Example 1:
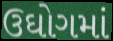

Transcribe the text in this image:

ઉઘોગમાં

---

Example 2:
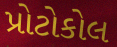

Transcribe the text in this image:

પ્રોટોકોલ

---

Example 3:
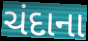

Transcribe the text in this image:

ચંદાના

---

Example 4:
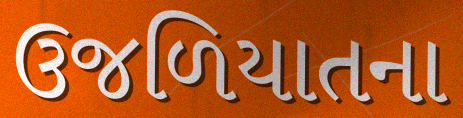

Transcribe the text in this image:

ઉજળિયાતના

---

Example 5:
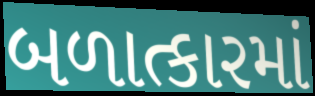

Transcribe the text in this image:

બળાત્કારમાં